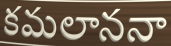
కమలాననా